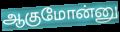
ஆகுமோன்னு